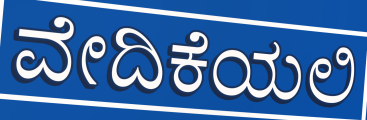
ವೇದಿಕೆಯಲಿ